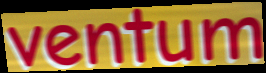
ventum